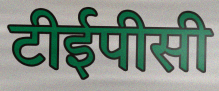
टीईपीसी